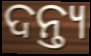
ଦନ୍ତ୍ଯ